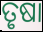
ତୃଷା